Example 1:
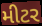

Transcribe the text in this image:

મીટર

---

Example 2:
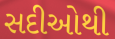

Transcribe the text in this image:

સદીઓથી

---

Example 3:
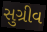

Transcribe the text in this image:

સુગ્રીવ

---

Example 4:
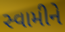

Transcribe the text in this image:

સ્વામીને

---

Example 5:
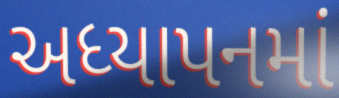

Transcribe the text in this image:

અધ્યાપનમાં